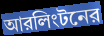
আরলিংটনের